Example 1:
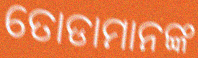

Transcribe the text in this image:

ତୋଡାମାନଙ୍କ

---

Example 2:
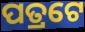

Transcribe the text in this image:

ପତ୍ରଟେ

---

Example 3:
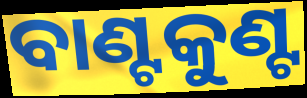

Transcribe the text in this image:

ବାଣ୍ଟକୁଣ୍ଟ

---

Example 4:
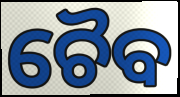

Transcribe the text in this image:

ଚୈବ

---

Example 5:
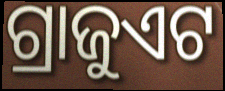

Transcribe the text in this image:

ଗ୍ରାଜୁଏଟ